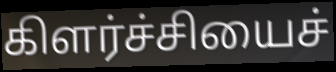
கிளர்ச்சியைச்